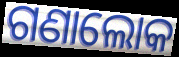
ଗଣାଲୋକ